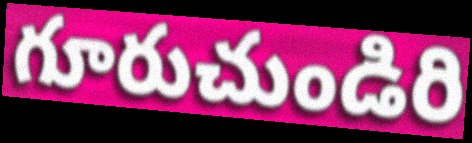
గూరుచుండిరి